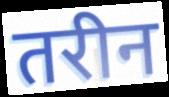
तरीन